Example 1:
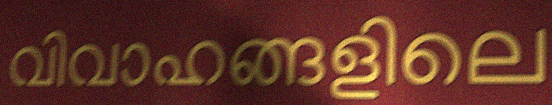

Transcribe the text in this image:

വിവാഹങ്ങളിലെ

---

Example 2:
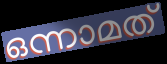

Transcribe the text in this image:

ഒന്നാമത്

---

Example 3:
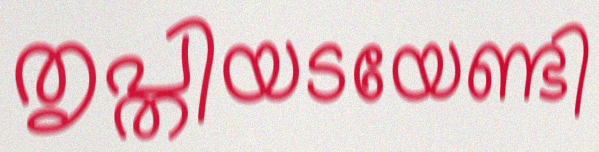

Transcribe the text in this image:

തൃപ്തിയടയേണ്ടി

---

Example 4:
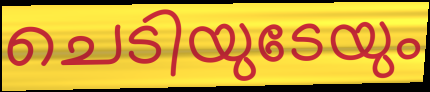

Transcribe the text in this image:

ചെടിയുടേയും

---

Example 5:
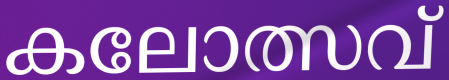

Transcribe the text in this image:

കലോത്സവ്